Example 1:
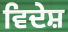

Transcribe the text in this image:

ਵਿਦੇਸ਼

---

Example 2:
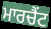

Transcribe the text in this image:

ਮਾਰਚੈਂਟ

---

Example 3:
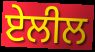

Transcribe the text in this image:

ਏਲੀਲ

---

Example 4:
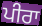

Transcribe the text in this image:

ਪੀਰਾ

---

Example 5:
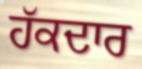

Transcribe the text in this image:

ਹੱਕਦਾਰ